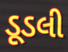
ડૂડલી